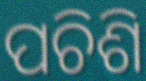
ପଚିଶି